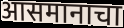
आसमानाचा